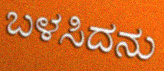
ಬಳಸಿದನು